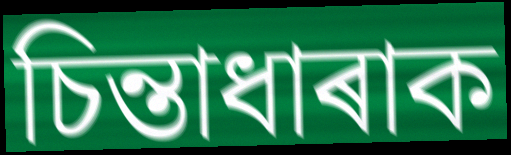
চিন্তাধাৰাক